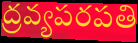
ద్రవ్యపరపతి